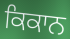
ਕਿਕਾਨ